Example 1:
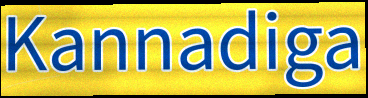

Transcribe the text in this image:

Kannadiga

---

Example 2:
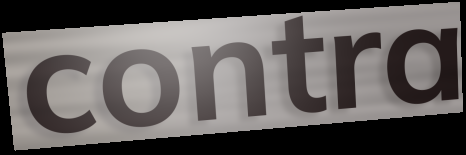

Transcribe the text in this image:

contra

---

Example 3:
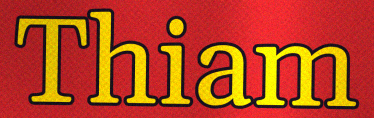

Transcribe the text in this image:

Thiam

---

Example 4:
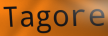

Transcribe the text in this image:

Tagore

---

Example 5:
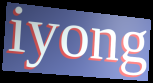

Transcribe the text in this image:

iyong